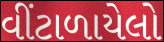
વીંટાળાયેલો